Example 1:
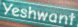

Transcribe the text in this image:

Yeshwant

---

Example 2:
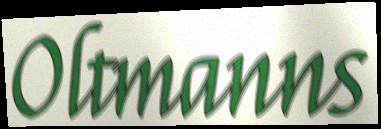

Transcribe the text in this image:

Oltmanns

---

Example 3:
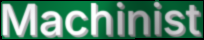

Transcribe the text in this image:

Machinist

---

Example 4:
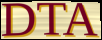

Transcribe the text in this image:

DTA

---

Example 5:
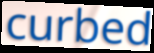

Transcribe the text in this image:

curbed